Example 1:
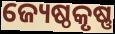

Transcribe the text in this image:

ଜ୍ୟେଷ୍ଠକୃଷ୍ଣ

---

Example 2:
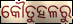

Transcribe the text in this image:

କୌତୁହଳରୁ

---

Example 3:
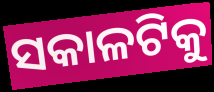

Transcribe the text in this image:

ସକାଳଟିକୁ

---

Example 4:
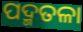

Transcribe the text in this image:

ପଦ୍ମତଳା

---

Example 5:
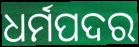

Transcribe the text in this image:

ଧର୍ମପଦର